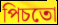
পিচতো